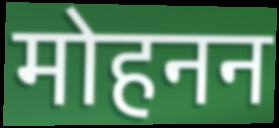
मोहनन